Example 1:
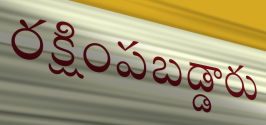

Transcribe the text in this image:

రక్షింపబడ్డారు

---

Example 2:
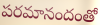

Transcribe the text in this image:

పరమానందంతో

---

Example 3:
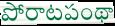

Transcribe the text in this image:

పోరాటపంథా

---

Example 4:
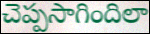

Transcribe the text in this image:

చెప్పసాగిందిలా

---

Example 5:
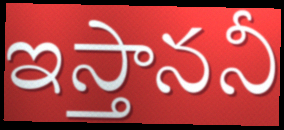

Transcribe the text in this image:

ఇస్తాననీ